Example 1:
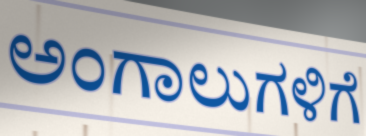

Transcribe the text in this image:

ಅಂಗಾಲುಗಳಿಗೆ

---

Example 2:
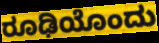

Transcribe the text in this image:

ರೂಢಿಯೊಂದು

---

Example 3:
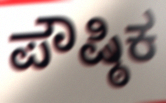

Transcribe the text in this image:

ಪೌಷ್ಠಿಕ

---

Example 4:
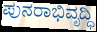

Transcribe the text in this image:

ಪುನರಾಭಿವೃದ್ಧಿ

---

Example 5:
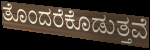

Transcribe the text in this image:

ತೊಂದರೆಕೊಡುತ್ತವೆ